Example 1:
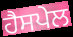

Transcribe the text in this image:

ਹੈਸਪੇਲ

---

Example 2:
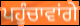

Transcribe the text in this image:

ਪਹੁੰਚਾਵਾਂਗੇ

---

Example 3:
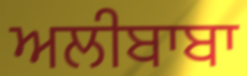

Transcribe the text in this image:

ਅਲੀਬਾਬਾ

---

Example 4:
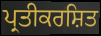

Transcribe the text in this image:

ਪ੍ਰਤੀਕਰਸ਼ਿਤ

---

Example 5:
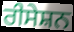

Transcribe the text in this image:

ਰੀਸੇਸ਼ਨ